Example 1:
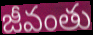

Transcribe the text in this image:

జీవంతు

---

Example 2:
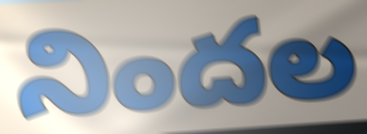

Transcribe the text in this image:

నిందల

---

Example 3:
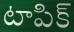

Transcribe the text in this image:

టాపిక్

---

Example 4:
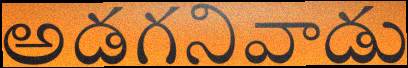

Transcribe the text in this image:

అడగనివాడు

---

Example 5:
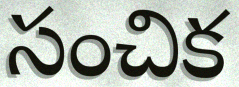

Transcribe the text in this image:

సంచిక